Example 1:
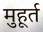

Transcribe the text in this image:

मुहूर्त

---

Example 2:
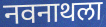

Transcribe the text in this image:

नवनाथला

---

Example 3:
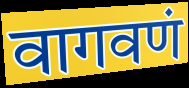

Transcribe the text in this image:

वागवणं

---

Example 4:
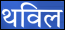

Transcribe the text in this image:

थविल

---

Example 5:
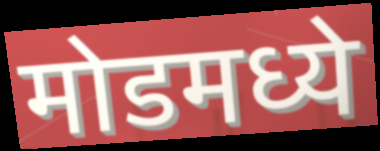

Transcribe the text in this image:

मोडमध्ये